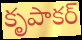
కృపాకర్